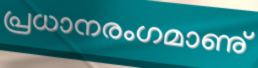
പ്രധാനരംഗമാണു്